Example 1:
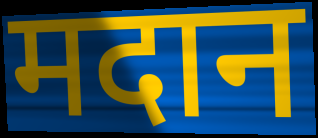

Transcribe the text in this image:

मदान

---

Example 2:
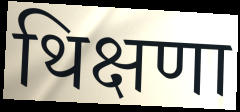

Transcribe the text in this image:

थिक्षणा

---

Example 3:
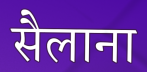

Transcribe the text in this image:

सैलाना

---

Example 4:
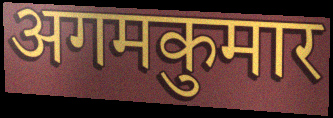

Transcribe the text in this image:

अगमकुमार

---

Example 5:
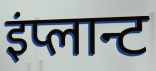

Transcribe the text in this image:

इंप्लान्ट